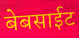
बेबसाईट